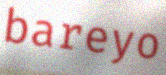
bareyo